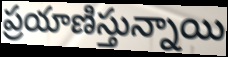
ప్రయాణిస్తున్నాయి